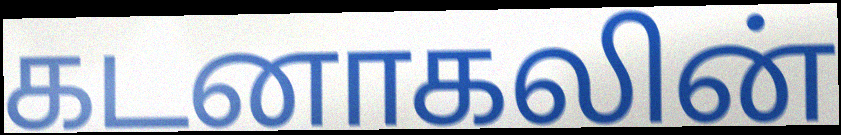
கடனாகலின்